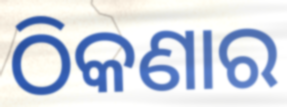
ଠିକଣାର